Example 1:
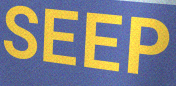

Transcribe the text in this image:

SEEP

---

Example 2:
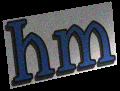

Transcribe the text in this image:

hm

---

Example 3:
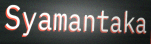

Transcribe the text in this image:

Syamantaka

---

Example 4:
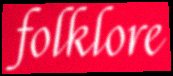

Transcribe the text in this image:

folklore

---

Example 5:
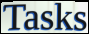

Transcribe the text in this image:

Tasks